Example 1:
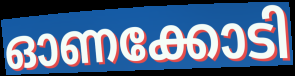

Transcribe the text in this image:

ഓണക്കോടി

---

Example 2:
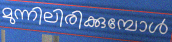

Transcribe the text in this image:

മുന്നിലിരിക്കുമ്പോൾ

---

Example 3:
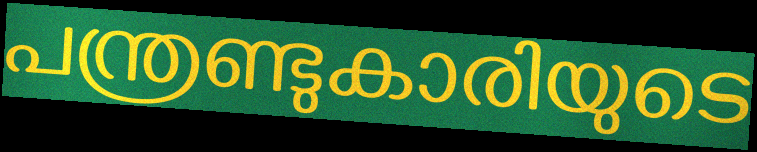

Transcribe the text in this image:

പന്ത്രണ്ടുകാരിയുടെ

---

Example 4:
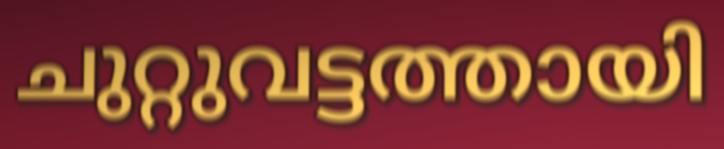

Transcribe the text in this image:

ചുറ്റുവട്ടത്തായി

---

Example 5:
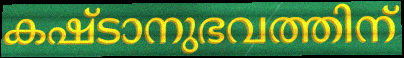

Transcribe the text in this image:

കഷ്ടാനുഭവത്തിന്